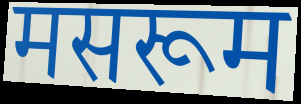
मसरूम